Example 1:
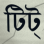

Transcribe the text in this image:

টিট্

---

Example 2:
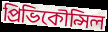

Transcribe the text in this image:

প্রিভিকৌন্সিল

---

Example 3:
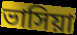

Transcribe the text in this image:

ভাসিয়া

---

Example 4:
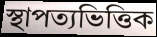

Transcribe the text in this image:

স্থাপত্যভিত্তিক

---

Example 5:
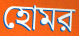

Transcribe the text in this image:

হোমর